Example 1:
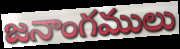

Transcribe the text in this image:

జనాంగములు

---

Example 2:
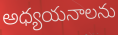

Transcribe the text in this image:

అధ్యయనాలను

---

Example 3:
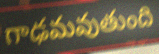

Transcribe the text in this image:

గాఢమవుతుంది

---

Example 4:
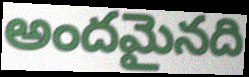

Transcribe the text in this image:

అందమైనది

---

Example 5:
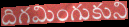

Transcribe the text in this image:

దిగమింగుకుని